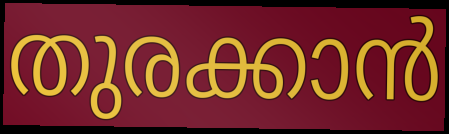
തുരക്കാൻ